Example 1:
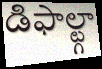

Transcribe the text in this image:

డిఫాల్ట్గా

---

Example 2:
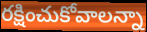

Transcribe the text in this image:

రక్షించుకోవాలన్నా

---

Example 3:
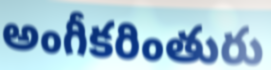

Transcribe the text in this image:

అంగీకరింతురు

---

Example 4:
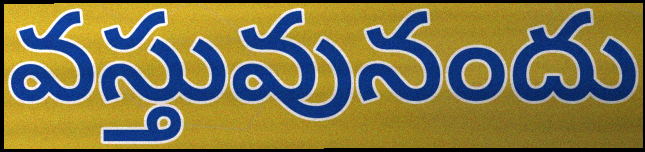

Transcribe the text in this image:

వస్తువునందు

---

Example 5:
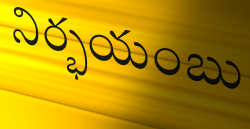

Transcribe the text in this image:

నిర్భయంబు